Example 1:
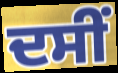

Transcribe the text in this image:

ਦਸੀਂ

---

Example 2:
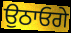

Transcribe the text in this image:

ਉਠਾਓਗੇ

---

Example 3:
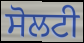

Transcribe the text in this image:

ਸੋਲਟੀ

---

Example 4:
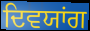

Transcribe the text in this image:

ਦਿਵਯਾਂਗ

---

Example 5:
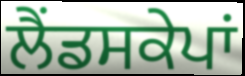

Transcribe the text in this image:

ਲੈਂਡਸਕੇਪਾਂ